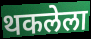
थकलेला